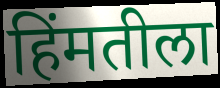
हिंमतीला